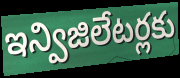
ఇన్విజిలేటర్లకు